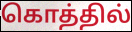
கொத்தில்